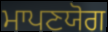
ਮਾਪਣਯੋਗ